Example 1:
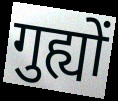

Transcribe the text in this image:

गुह्यों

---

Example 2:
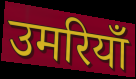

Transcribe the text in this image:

उमरियाँ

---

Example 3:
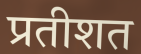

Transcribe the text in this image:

प्रतीशत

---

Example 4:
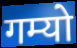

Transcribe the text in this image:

गम्यो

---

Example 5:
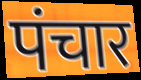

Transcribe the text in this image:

पंचार